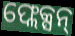
ଫ୍ଲେକ୍ସନ୍